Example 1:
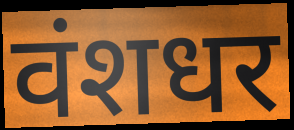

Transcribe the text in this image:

वंशधर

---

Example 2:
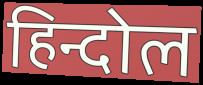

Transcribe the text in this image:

हिन्दोल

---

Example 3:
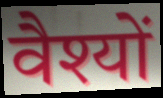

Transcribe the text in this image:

वैश्‍यों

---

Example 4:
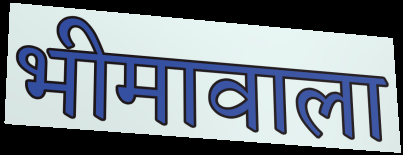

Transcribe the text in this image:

भीमावाला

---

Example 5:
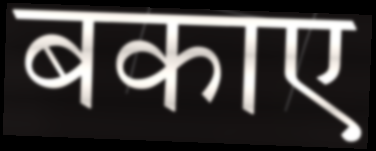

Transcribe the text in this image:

बकाए